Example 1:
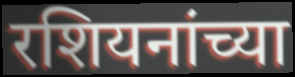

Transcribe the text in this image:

रशियनांच्या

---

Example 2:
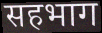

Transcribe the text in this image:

सहभाग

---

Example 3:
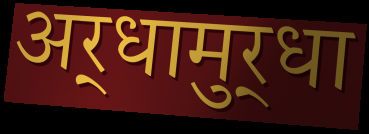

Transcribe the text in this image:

अर्धामुर्धा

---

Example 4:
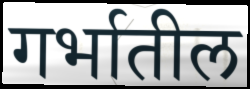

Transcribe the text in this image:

गर्भातील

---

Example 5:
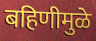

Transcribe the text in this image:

बहिणीमुळे